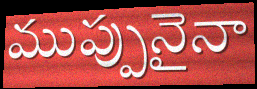
ముప్పునైనా